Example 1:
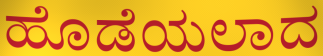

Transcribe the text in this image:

ಹೊಡೆಯಲಾದ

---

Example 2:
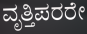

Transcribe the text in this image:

ವೃತ್ತಿಪರರೇ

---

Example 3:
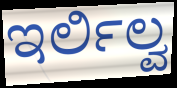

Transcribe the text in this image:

ಇರ್ಲಿಲ್ವ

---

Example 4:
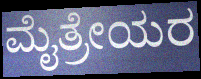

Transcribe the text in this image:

ಮೈತ್ರೇಯರ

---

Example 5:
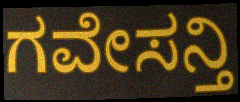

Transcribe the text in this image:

ಗವೇಸನ್ತಿ